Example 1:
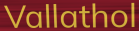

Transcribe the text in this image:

Vallathol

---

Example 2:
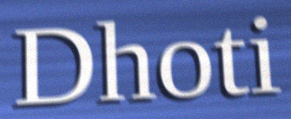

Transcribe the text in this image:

Dhoti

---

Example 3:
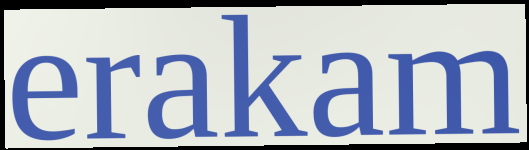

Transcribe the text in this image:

erakam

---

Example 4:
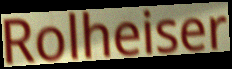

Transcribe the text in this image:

Rolheiser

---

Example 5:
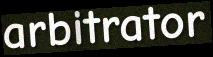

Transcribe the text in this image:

arbitrator